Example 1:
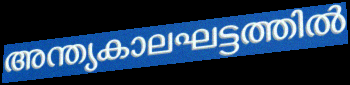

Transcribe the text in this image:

അന്ത്യകാലഘട്ടത്തിൽ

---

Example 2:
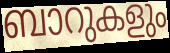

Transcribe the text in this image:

ബാറുകളും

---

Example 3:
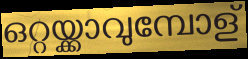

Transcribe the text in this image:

ഒറ്റയ്ക്കാവുമ്പോള്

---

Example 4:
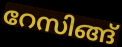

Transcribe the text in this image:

റേസിങ്ങ്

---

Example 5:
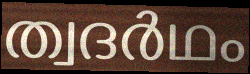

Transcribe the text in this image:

ത്വദർഥം